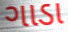
ગાડા